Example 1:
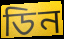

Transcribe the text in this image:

ডিন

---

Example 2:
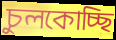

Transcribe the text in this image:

চুলকোচ্ছি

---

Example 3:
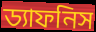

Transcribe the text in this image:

ড্যাফনিস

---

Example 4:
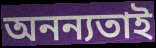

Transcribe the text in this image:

অনন্যতাই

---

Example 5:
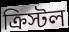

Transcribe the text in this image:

ক্রিস্টল